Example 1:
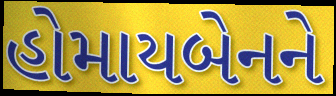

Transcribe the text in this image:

હોમાયબેનને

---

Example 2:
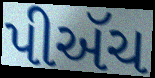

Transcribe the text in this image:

પીઍચ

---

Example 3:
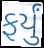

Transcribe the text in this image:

ફર્યું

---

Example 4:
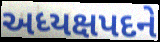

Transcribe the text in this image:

અધ્યક્ષપદને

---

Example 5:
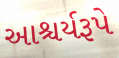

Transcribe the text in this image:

આશ્ચર્યરૂપે